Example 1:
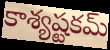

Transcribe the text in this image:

కాశ్యష్టకమ్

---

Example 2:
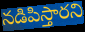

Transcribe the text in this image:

నడిపిస్తారని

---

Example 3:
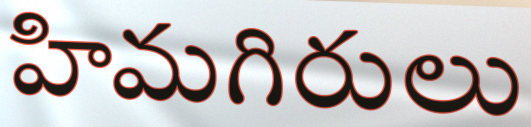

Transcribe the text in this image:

హిమగిరులు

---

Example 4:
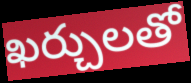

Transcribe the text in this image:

ఖర్చులతో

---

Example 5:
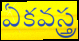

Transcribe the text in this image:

ఏకవస్త్ర